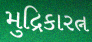
મુદ્રિકારત્ન